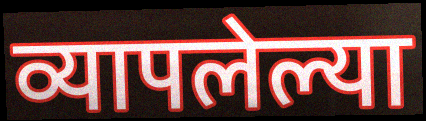
व्यापलेल्या